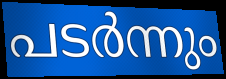
പടർന്നും